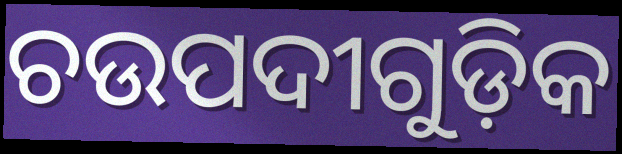
ଚଉପଦୀଗୁଡ଼ିକ